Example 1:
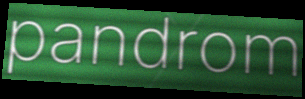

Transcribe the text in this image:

pandrom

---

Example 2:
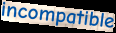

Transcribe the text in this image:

incompatible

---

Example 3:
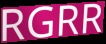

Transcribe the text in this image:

RGRR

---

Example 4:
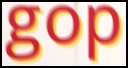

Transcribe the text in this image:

gop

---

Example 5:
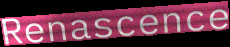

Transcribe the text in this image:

Renascence